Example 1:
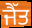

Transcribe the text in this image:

ਜੈੱਤ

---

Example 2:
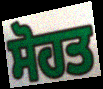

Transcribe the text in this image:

ਸੋਹਤ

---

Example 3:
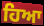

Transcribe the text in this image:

ਹਿਆ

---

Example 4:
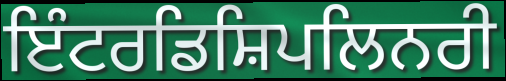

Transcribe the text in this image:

ਇੰਟਰਡਿਸ਼ਿਪਲਿਨਰੀ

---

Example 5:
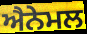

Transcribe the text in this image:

ਐਨੇਮਲ